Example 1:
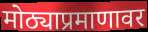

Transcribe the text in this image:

मोठ्याप्रमाणावर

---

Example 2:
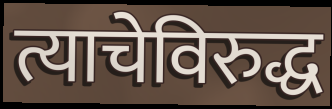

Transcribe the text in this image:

त्याचेविरुद्ध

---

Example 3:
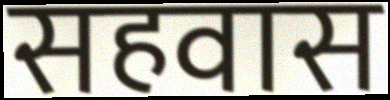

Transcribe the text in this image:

सहवास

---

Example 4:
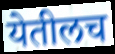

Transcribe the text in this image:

येतीलच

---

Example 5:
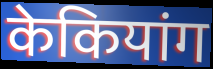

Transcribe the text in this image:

केकियांग